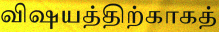
விஷயத்திற்காகத்